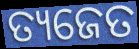
ତ୍ୟଜେତ